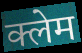
क्लेम